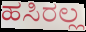
ಹಸಿರಲ್ಲ